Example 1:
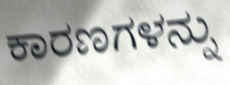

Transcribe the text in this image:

ಕಾರಣಗಳನ್ನು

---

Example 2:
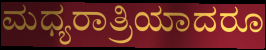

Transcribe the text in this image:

ಮಧ್ಯರಾತ್ರಿಯಾದರೂ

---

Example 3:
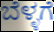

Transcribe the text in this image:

ಬೆಳ್ಳಗೆ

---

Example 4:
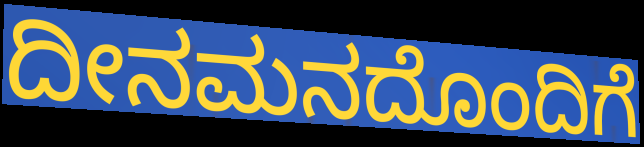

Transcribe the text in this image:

ದೀನಮನದೊಂದಿಗೆ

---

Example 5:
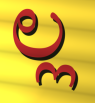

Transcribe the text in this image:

ಲ್ಲ